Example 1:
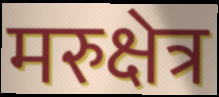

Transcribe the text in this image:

मरुक्षेत्र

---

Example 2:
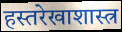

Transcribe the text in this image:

हस्तरेखाशास्त्र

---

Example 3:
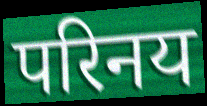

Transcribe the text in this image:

परिनय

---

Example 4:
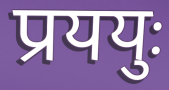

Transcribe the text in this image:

प्रययुः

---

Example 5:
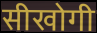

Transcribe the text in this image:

सीखोगी